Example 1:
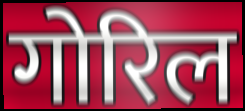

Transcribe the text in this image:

गोरिल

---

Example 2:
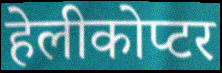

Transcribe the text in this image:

हेलीकोप्टर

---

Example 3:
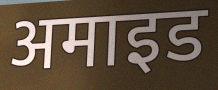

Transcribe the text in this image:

अमाइड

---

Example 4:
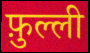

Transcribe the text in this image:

फ़ुल्ली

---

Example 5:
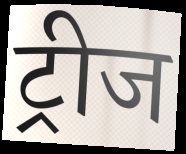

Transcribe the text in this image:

ट्रीज